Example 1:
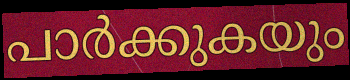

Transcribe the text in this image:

പാർക്കുകയും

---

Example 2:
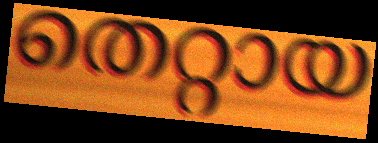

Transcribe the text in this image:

തെറ്റായ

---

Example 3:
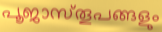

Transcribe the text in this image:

പൂജാസ്‌തൂപങ്ങളും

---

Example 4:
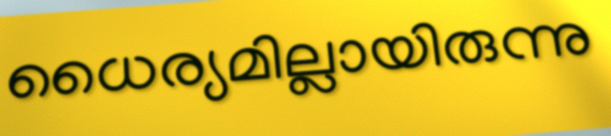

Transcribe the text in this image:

ധൈര്യമില്ലായിരുന്നു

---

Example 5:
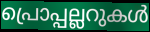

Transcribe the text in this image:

പ്രൊപ്പല്ലറുകൾ